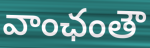
వాంఛంతౌ